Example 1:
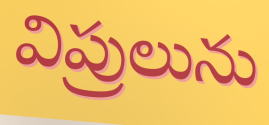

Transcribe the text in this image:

విప్రులును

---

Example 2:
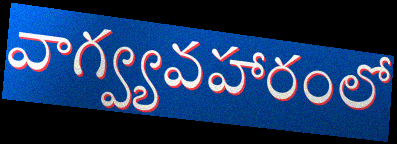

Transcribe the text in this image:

వాగ్వ్యవహారంలో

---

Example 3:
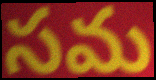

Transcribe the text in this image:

సమ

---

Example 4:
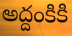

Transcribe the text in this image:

అద్దంకికి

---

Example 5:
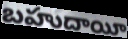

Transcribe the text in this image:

బహుదాయీ